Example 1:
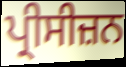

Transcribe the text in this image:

ਪ੍ਰੀਸੀਜ਼ਨ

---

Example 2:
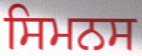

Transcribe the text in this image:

ਸਿਮਨਸ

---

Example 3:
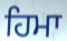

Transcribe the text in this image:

ਹਿਮਾ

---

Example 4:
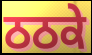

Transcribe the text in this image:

ਠਠਕੇ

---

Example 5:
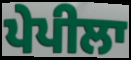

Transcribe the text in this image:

ਪੇਪੀਲਾ